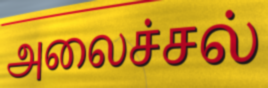
அலைச்சல்